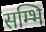
सम्भि